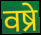
वष्रे